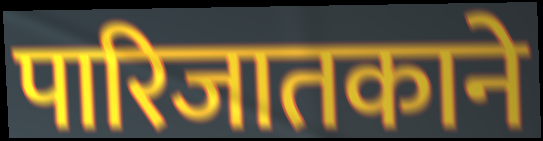
पारिजातकाने